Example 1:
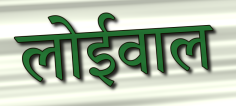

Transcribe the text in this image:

लोईवाल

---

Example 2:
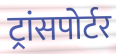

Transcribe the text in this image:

ट्रांसपोर्टर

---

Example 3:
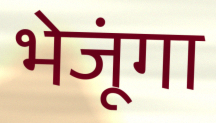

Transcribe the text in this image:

भेजूंगा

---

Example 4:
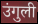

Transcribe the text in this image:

उंगुली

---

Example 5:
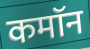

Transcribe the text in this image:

कमॉन